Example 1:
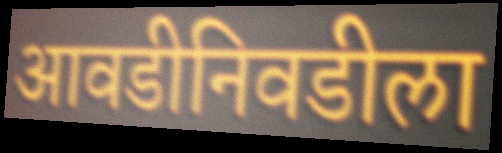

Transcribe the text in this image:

आवडीनिवडीला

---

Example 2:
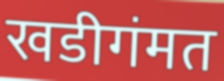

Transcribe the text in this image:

खडीगंमत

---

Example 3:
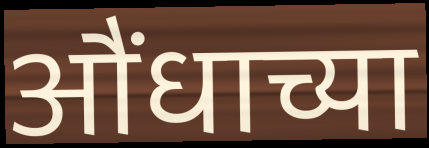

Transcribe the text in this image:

औंधाच्या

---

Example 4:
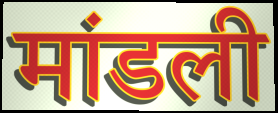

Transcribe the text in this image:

मांडली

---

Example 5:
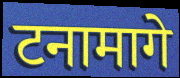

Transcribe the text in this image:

टनामागे